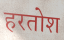
हरतोश